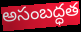
అసంబద్ధత